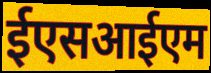
ईएसआईएम